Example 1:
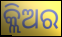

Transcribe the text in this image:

କ୍ଲିଅର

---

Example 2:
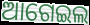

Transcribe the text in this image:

ଆଗେଇଲ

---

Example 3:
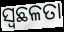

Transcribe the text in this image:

ସ୍ୱଛଳତା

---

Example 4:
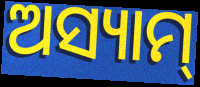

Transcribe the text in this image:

ଅସ୍ୟାମ୍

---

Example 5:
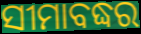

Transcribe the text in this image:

ସୀମାବଦ୍ଧର